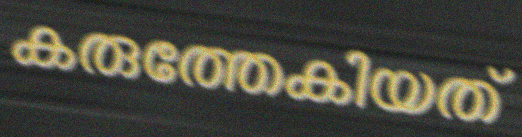
കരുത്തേകിയത്